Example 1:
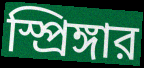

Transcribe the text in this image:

স্প্রিঙ্গার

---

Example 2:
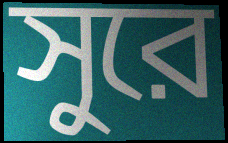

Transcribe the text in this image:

সুরে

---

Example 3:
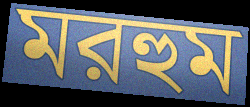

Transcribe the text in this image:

মরহুম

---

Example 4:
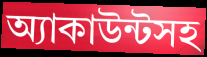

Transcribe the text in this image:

অ্যাকাউন্টসহ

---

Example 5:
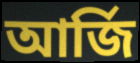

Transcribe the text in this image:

আর্জি